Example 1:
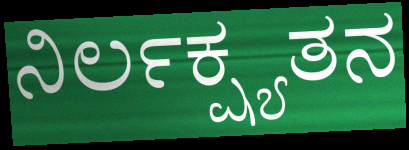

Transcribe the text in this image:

ನಿರ್ಲಕ್ಷ್ಯತನ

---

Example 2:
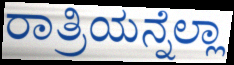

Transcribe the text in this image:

ರಾತ್ರಿಯನ್ನೆಲ್ಲಾ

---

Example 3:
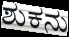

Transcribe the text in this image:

ಶುಕನು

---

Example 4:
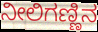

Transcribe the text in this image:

ನೀಲಿಗಣ್ಣಿನ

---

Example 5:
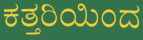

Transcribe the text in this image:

ಕತ್ತರಿಯಿಂದ